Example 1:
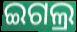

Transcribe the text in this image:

ଇଗଲ୍ର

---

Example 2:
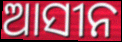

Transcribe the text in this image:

ଆସୀନ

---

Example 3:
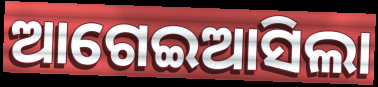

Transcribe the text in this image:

ଆଗେଇଆସିଲା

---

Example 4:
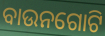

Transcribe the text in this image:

ବାଉନଗୋଟି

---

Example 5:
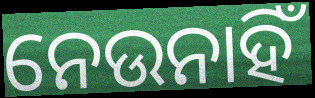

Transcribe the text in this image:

ନେଉନାହିଁ